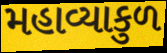
મહાવ્યાકુળ